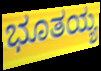
ಭೂತಯ್ಯ